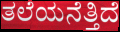
ತಲೆಯನೆತ್ತಿದೆ